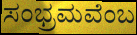
ಸಂಭ್ರಮವೆಂಬ